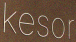
kesor